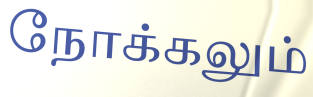
நோக்கலும்